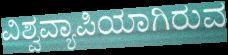
ವಿಶ್ವವ್ಯಾಪಿಯಾಗಿರುವ